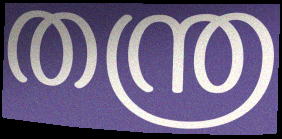
തന്ത്ര